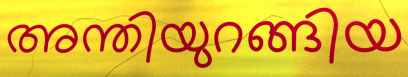
അന്തിയുറങ്ങിയ